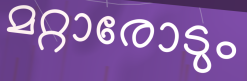
മറ്റാരോടും